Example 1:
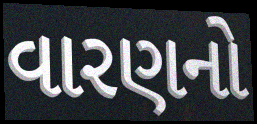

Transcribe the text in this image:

વારણનો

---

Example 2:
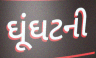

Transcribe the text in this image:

ઘૂંઘટની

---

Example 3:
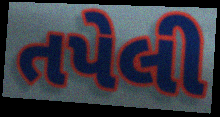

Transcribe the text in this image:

તપેલી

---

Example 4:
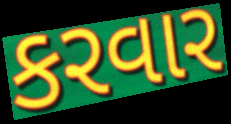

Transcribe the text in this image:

કરવાર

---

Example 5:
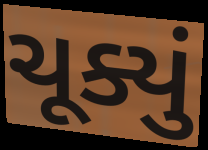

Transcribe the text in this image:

ચૂક્યું